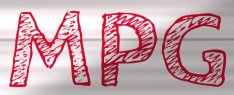
MPG